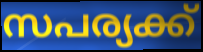
സപര്യക്ക്